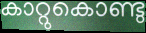
കാറ്റുകൊണ്ടു